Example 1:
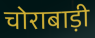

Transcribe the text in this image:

चोराबाड़ी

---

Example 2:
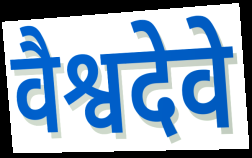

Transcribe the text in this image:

वैश्वदेवे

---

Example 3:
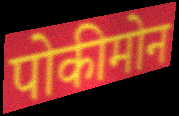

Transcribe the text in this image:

पोकीमोन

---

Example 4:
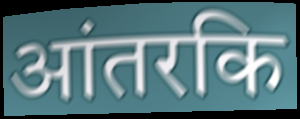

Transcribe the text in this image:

आंतरकि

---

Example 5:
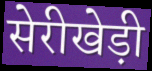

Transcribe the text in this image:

सेरीखेड़ी